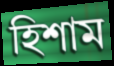
হিশাম